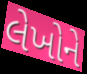
લેખોને